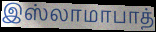
இஸ்லாமாபாத்